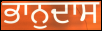
ਭਾਨੁਦਾਸ